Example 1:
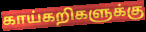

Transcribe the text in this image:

காய்கறிகளுக்கு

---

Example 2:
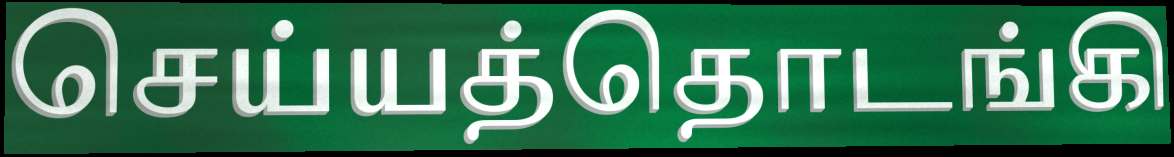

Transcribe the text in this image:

செய்யத்தொடங்கி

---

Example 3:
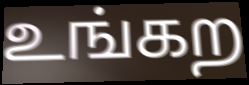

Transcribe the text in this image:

உங்கற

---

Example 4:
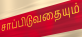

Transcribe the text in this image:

சாப்பிடுவதையும்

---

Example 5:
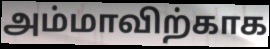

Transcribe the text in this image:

அம்மாவிற்காக